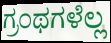
ಗ್ರಂಥಗಳೆಲ್ಲ